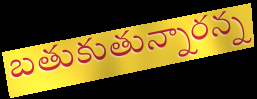
బతుకుతున్నారన్న